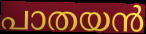
പാതയൻ